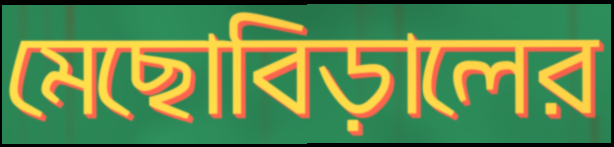
মেছোবিড়ালের